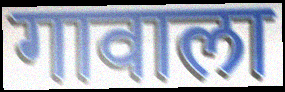
गावाला